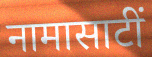
नामासाटीं